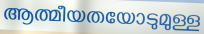
ആത്മീയതയോടുമുള്ള